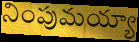
నింపుమయ్యా